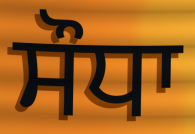
ਸੌਧਾ